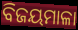
ବିଜୟମାଳା